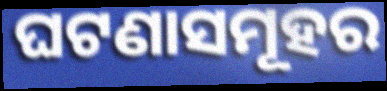
ଘଟଣାସମୂହର